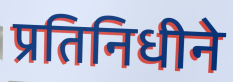
प्रतिनिधीने